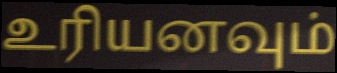
உரியனவும்